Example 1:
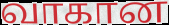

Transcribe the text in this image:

வாகான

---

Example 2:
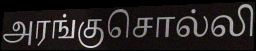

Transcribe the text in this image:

அரங்குசொல்லி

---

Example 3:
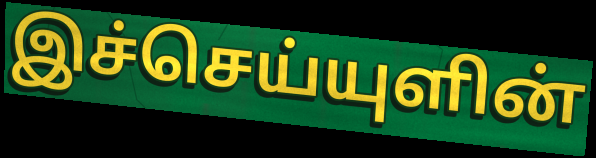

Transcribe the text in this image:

இச்செய்யுளின்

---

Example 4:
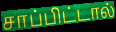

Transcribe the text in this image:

சாப்பிட்டால்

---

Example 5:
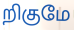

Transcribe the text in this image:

றிகுமே